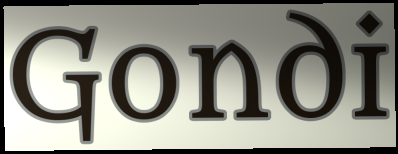
Gondi